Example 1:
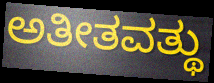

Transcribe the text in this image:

ಅತೀತವತ್ಥು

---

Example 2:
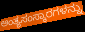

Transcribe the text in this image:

ಅಂತ್ಯಸಂಸ್ಕಾರಗಳನ್ನು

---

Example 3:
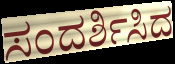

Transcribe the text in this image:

ಸಂದರ್ಶಿಸಿದ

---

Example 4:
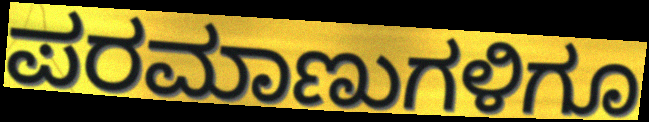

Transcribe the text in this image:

ಪರಮಾಣುಗಳಿಗೂ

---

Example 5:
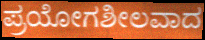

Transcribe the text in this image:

ಪ್ರಯೋಗಶೀಲವಾದ